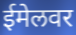
ईमेलवर